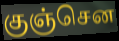
குஞ்சென